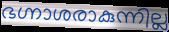
ഭഗ്നാശരാകുന്നില്ല